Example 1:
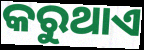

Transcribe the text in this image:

କରୁଥାଏ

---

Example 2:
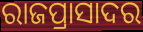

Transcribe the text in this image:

ରାଜପ୍ରାସାଦର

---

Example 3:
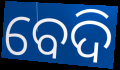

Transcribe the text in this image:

ବେଦି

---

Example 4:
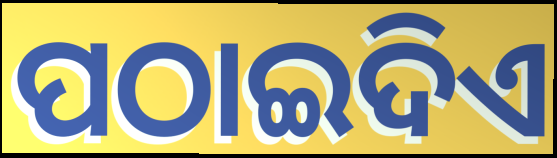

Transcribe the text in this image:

ପଠାଇଦିଏ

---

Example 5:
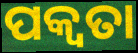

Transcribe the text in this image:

ପକ୍ୱତା